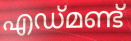
എഡ്മണ്ട്